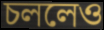
চললেও